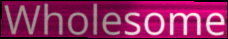
Wholesome